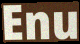
Enu